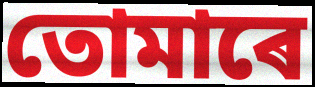
তোমাৰে